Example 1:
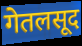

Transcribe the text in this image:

गेतलसूद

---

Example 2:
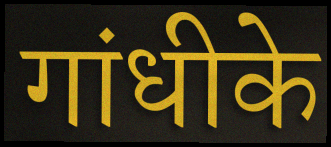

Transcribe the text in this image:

गांधीके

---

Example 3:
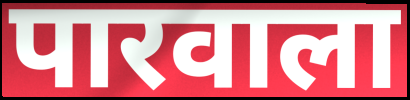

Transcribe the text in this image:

पारवाला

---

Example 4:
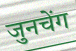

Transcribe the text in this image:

जुनचेंग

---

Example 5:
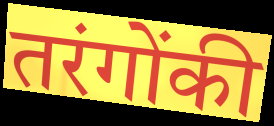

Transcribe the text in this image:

तरंगोंकी